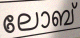
ലോബ്